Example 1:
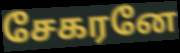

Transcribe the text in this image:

சேகரனே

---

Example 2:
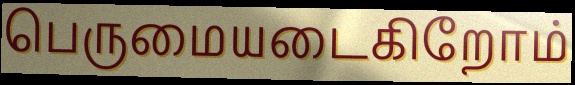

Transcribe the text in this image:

பெருமையடைகிறோம்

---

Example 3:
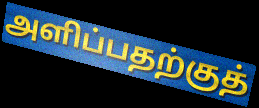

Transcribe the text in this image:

அளிப்பதற்குத்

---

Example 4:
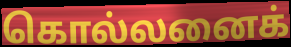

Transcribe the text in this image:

கொல்லனைக்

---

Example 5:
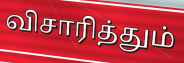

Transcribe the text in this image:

விசாரித்தும்